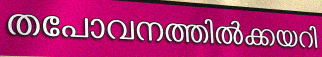
തപോവനത്തിൽക്കയറി